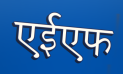
एईएफ